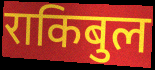
राकिबुल